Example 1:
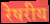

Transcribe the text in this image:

रेषरीय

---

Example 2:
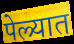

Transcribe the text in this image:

पेल्यात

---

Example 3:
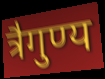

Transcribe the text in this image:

त्रैगुण्य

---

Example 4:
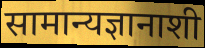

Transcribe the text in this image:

सामान्यज्ञानाशी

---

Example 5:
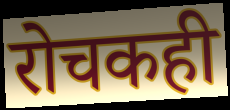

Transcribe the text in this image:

रोचकही